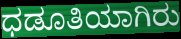
ಧಡೂತಿಯಾಗಿರು